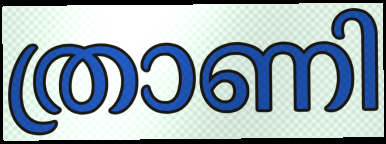
ത്രാണി